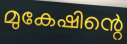
മുകേഷിന്റെ